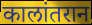
कालांतरान